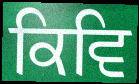
ਕਿਵਿ